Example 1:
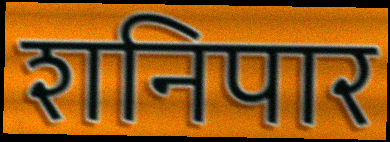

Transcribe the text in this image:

शनिपार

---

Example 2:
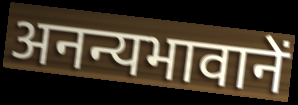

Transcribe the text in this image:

अनन्यभावानें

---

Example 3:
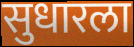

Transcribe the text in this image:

सुधारला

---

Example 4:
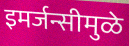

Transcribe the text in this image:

इमर्जन्सीमुळे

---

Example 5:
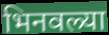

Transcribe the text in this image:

भिनवल्या